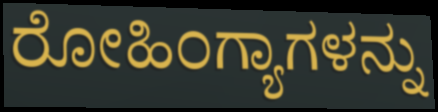
ರೋಹಿಂಗ್ಯಾಗಳನ್ನು